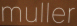
muller